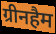
ग्रीनहैम